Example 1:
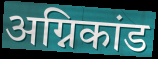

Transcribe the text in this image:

अग्निकांड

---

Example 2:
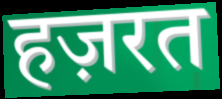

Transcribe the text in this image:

हज़रत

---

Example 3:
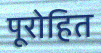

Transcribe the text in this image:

पूरोहित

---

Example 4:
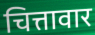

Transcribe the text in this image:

चित्तावार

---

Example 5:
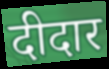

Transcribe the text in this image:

दीदार